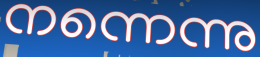
നന്നെന്നു